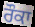
ਰੌਕਾ